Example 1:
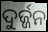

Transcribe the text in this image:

ଦୁର୍ଜ୍ଜନ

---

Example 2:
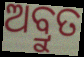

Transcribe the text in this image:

ଅବ୍ରୁତ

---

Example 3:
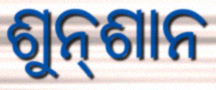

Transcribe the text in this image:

ଶୁନ୍‍ଶାନ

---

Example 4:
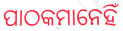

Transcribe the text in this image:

ପାଠକମାନେହିଁ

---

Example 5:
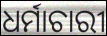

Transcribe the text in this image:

ଧର୍ମାଚାରୀ